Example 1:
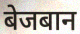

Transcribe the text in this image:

बेजबान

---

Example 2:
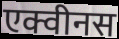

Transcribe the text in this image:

एक्वीनस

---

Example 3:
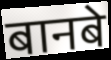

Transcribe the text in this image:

बानबे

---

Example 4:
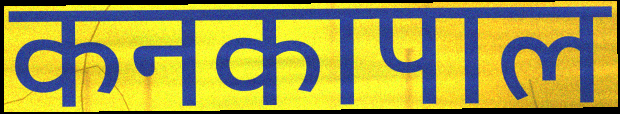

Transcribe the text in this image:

कनकापाल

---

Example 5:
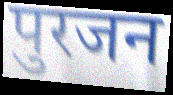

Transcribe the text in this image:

पुरजन